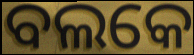
ବଲକେ